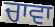
ਚਾਵਾ